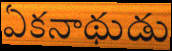
ఏకనాథుడు